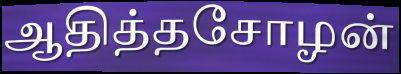
ஆதித்தசோழன்